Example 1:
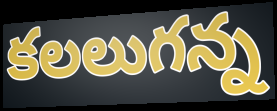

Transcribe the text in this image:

కలలుగన్న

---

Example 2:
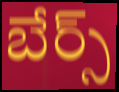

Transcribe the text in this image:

బేర్స్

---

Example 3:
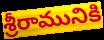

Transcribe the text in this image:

శ్రీరామునికి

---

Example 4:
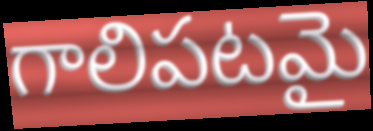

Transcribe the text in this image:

గాలిపటమై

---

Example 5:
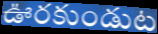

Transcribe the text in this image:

ఊరకుండుట